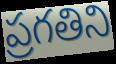
ప్రగతిని